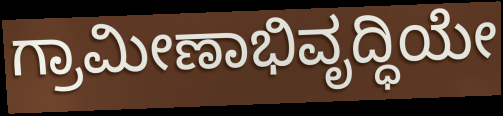
ಗ್ರಾಮೀಣಾಭಿವೃದ್ಧಿಯೇ